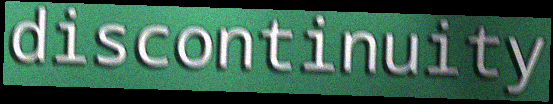
discontinuity